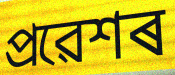
প্ৰৱেশৰ